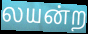
லயன்ற